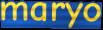
maryo